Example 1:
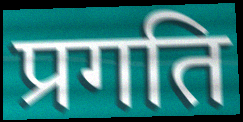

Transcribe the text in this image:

प्रगति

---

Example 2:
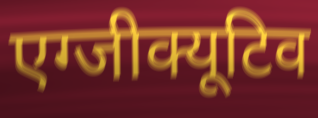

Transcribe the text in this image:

एग्जीक्यूटिव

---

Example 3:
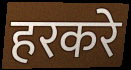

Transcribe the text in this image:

हरकरे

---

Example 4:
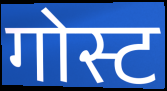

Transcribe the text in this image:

गोस्ट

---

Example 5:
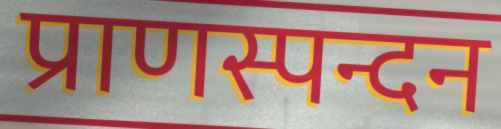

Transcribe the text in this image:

प्राणस्पन्दन